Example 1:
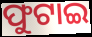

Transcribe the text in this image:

ଫୁଟାଇ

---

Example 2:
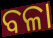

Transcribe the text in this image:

ବଳା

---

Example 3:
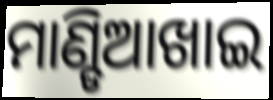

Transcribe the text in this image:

ମାଣ୍ଡିଆଖାଇ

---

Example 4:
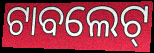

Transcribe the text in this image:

ଟାବଲେଟ୍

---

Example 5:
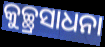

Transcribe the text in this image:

କୁଚ୍ଛ୍ରସାଧନା